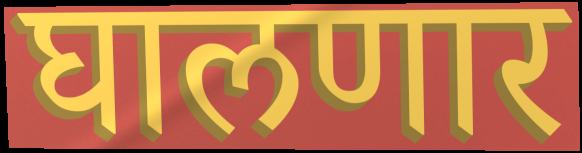
घालणार